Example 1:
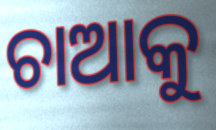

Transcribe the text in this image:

ଚାଆକୁ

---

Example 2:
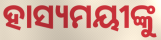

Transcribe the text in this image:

ହାସ୍ୟମୟୀଙ୍କୁ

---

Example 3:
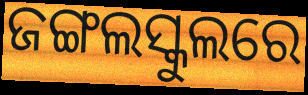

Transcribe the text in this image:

ଜଙ୍ଗଲସ୍କୁଲରେ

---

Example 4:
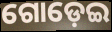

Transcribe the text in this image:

ଗୋଡ଼େଇ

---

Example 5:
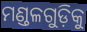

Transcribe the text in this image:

ମଣ୍ଡଳଗୁଡ଼ିକୁ